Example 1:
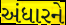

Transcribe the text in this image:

અંધારને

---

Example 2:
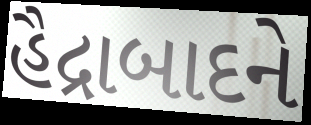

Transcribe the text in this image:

હૈદ્રાબાદને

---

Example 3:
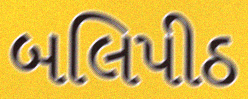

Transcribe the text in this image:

બલિપીઠ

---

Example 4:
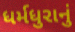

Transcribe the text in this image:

ધર્મધુરાનું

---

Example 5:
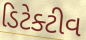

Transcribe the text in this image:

ડિટેક્ટીવ